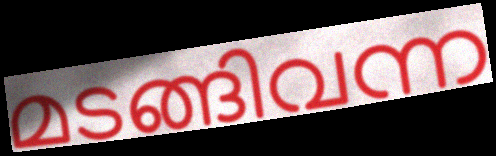
മടങ്ങിവന്ന